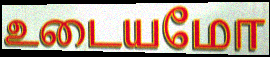
உடையமோ